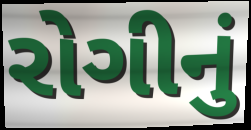
રોગીનું